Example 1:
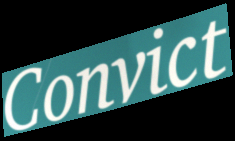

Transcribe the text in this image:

Convict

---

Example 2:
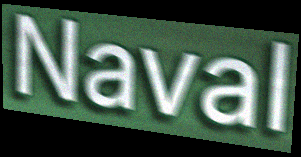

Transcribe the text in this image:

Naval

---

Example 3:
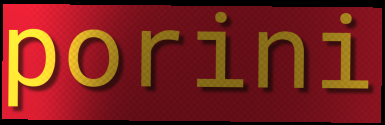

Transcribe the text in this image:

porini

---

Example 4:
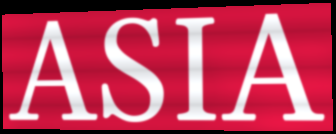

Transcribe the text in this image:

ASIA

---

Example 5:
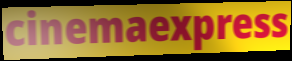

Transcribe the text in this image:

cinemaexpress